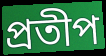
প্রতীপ